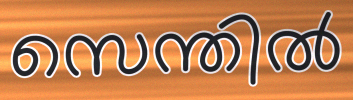
സെന്തിൽ